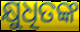
କ୍ଷୁଧିତଙ୍କ